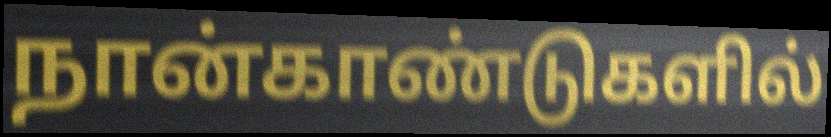
நான்காண்டுகளில்